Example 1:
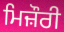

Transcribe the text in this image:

ਮਿਜ਼ੌਰੀ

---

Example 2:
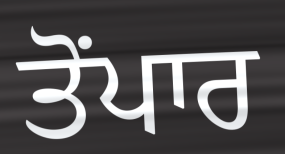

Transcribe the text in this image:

ਤੋਂਪਾਰ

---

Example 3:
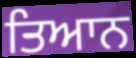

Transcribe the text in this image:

ਤਿਆਨ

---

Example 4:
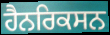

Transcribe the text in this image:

ਹੈਨਰਿਕਸਨ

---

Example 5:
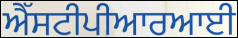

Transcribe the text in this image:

ਐੱਸਟੀਪੀਆਰਆਈ